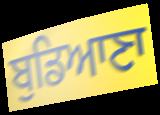
ਬੁਡਿਆਣਾ